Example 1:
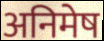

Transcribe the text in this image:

अनिमेष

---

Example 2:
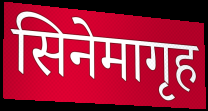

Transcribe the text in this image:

सिनेमागृह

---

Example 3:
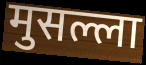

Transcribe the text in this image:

मुसल्ला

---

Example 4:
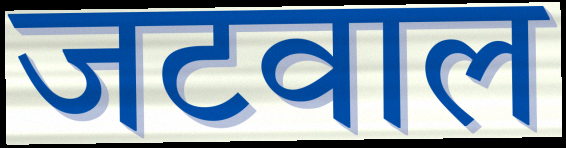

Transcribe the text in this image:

जटवाल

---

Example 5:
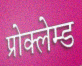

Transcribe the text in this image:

प्रोक्लेम्ड